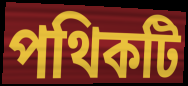
পথিকটি